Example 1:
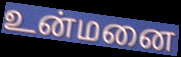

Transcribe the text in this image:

உன்மனை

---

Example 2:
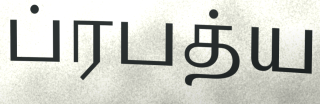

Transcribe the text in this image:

ப்ரபத்ய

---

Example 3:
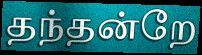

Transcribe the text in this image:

தந்தன்றே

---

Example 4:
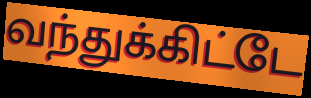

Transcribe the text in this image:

வந்துக்கிட்டே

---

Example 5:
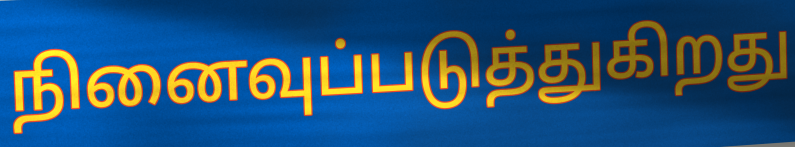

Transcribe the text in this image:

நினைவுப்படுத்துகிறது